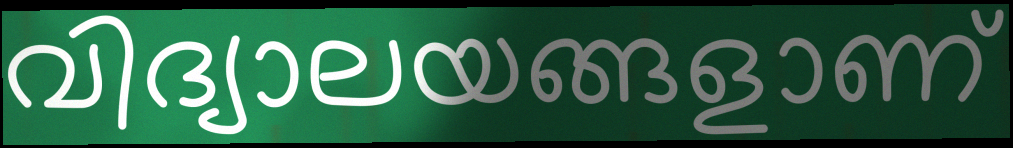
വിദ്യാലയങ്ങളാണ്